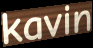
kavin